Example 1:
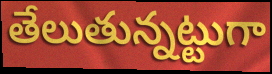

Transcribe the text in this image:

తేలుతున్నట్టుగా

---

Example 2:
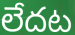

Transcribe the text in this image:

లేదట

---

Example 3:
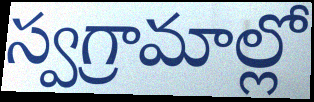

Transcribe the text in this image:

స్వగ్రామాల్లో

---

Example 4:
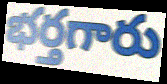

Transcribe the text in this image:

భర్తగారు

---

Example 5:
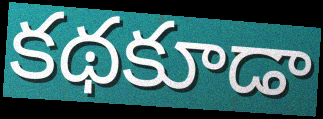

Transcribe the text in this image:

కథకూడా